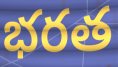
భరత